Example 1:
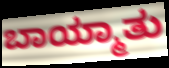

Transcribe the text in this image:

ಬಾಯ್ಮಾತು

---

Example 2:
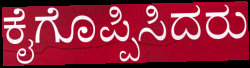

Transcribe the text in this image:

ಕೈಗೊಪ್ಪಿಸಿದರು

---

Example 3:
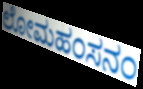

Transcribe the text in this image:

ಲೋಮಹಂಸನಂ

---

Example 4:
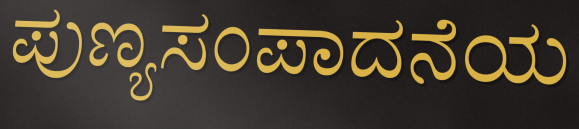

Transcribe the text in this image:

ಪುಣ್ಯಸಂಪಾದನೆಯ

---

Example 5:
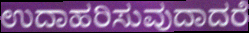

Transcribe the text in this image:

ಉದಾಹರಿಸುವುದಾದರೆ